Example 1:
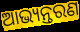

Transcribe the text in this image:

ଆଭ୍ୟନ୍ତରଣ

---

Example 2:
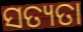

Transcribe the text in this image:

ସତ୍ୟତା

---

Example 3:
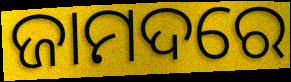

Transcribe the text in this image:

ଜାମଦରେ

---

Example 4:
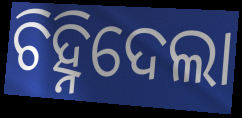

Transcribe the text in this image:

ଚିହ୍ନିଦେଲା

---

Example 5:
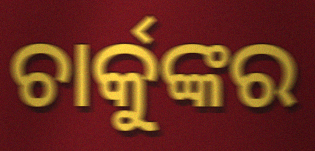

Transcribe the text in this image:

ଚାର୍କୁଙ୍କର